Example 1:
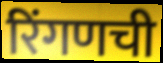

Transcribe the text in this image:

रिंगणची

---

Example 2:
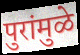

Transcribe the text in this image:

पुरांमुळे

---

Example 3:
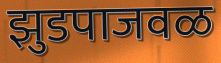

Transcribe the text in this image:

झुडपाजवळ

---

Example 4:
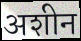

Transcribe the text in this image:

अशीन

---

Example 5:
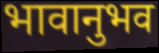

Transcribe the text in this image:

भावानुभव